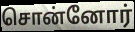
சொன்னோர்